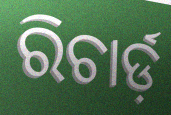
ରିଚାର୍ଡ଼